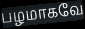
பழமாகவே